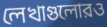
লেখাগুলোরও